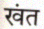
खंत